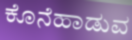
ಕೊನೆಹಾಡುವ